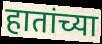
हातांच्या